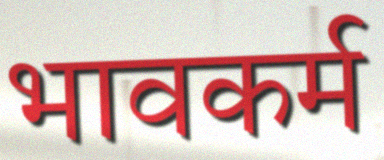
भावकर्म